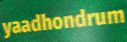
yaadhondrum